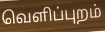
வெளிப்புறம்